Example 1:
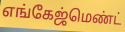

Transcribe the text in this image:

எங்கேஜ்மெண்ட்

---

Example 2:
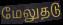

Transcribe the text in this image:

மேலுதடு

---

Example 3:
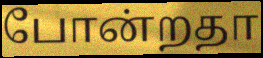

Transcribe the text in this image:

போன்றதா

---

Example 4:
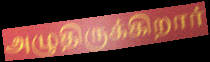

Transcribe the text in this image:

அழுதிருக்கிறார்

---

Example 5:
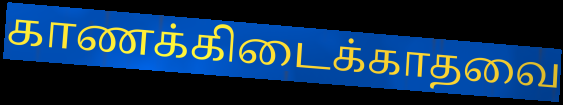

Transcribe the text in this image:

காணக்கிடைக்காதவை